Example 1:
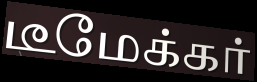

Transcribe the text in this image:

டீமேக்கர்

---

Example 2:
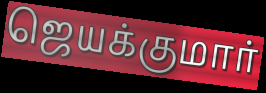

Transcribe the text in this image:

ஜெயக்குமார்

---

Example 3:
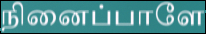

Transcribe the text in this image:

நினைப்பாளே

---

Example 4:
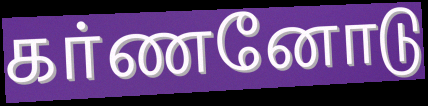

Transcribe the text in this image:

கர்ணனோடு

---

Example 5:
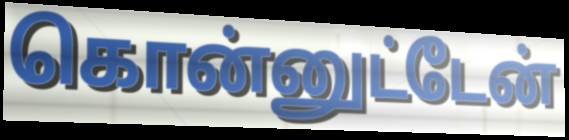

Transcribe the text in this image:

கொன்னுட்டேன்